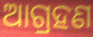
ଆଗ୍ରହଣ